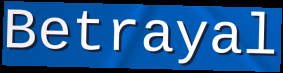
Betrayal